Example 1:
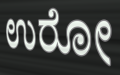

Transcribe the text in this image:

ಉರೋ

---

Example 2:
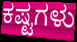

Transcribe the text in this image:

ಕಷ್ಟಗಳು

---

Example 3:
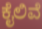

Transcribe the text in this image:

ಕೈಲಿವೆ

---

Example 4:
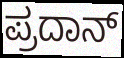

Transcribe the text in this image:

ಪ್ರದಾನ್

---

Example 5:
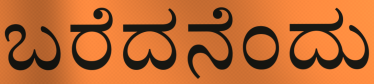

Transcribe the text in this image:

ಬರೆದನೆಂದು